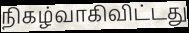
நிகழ்வாகிவிட்டது